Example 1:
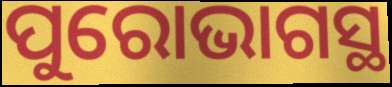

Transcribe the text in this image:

ପୁରୋଭାଗସ୍ଥ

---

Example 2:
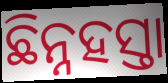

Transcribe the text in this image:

ଛିନ୍ନହସ୍ତା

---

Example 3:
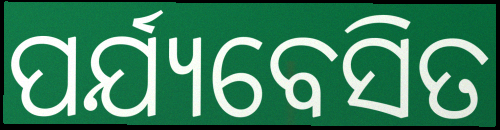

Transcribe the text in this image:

ପର୍ଯ୍ୟବେସିତ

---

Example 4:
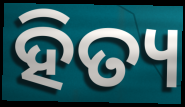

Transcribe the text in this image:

ହିତ୍ୟ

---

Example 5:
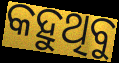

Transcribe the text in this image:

କହୁଥିବୁ